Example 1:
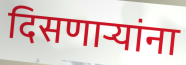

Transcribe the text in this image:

दिसणाऱ्यांना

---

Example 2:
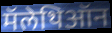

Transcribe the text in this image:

मॅलेथिऑन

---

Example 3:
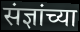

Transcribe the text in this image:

संज्ञांच्या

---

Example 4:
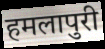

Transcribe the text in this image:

हमलापुरी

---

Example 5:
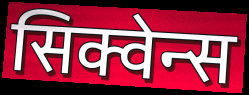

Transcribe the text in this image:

सिक्वेन्स